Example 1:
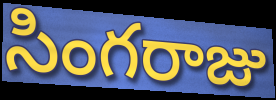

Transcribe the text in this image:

సింగరాజు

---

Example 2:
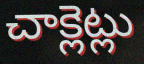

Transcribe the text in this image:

చాక్లెట్లు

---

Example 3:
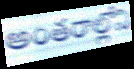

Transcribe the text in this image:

అంతరాల్లోని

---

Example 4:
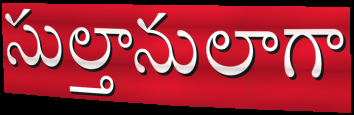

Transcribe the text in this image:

సుల్తానులాగా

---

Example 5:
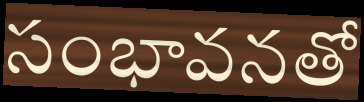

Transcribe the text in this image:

సంభావనతో